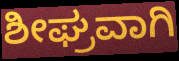
ಶೀಘ್ರವಾಗಿ